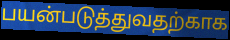
பயன்படுத்துவதற்காக